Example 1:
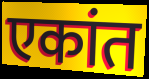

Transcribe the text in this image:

एकांत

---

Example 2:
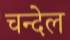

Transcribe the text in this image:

चन्देल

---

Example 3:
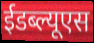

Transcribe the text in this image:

ईडब्ल्यूएस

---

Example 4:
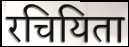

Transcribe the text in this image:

रचियिता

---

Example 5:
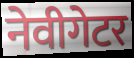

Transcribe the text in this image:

नेवीगेटर